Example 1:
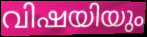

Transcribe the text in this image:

വിഷയിയും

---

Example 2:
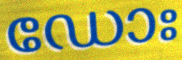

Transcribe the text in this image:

ഡോഃ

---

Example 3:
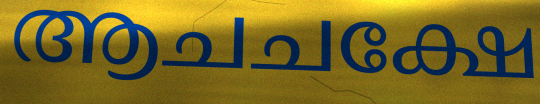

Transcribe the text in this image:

ആചചക്ഷേ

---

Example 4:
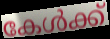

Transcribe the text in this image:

കേൾക്ക്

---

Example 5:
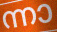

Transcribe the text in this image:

ന്നാ